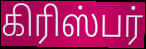
கிரிஸ்பர்